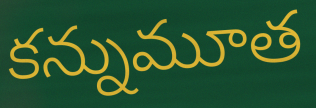
కన్నుమూత